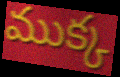
ముక్క